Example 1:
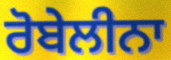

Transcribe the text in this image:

ਰੋਬੇਲੀਨਾ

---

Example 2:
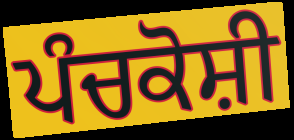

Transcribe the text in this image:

ਪੰਚਕੋਸ਼ੀ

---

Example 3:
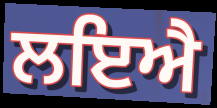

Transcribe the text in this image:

ਲਇਐ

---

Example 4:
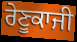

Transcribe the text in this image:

ਰੇਣੂਕਾਜੀ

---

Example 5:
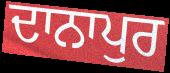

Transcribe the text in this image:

ਦਾਨਾਪੁਰ